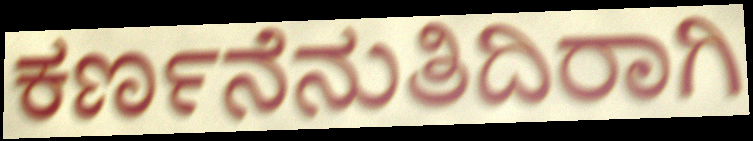
ಕರ್ಣನೆನುತಿದಿರಾಗಿ